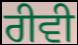
ਰੀਵੀ